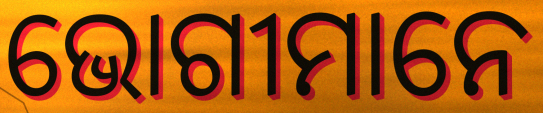
ଭୋଗୀମାନେ